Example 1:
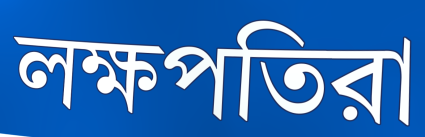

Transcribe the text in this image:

লক্ষপতিরা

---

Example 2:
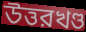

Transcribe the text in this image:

উত্তরখণ্ড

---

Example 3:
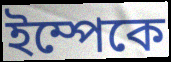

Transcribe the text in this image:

ইম্পেকে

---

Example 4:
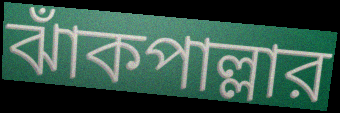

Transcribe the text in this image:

ঝাঁকপাল্লার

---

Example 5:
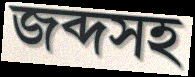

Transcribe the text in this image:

জব্দসহ